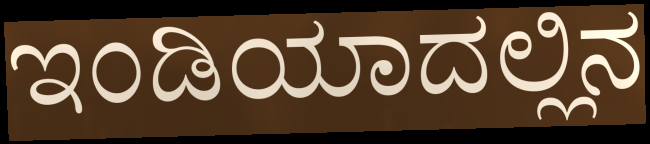
ಇಂಡಿಯಾದಲ್ಲಿನ